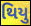
થિયુ